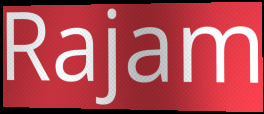
Rajam